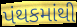
પંથકમાંથી